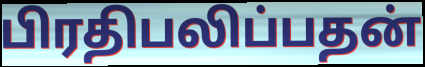
பிரதிபலிப்பதன்